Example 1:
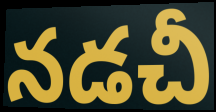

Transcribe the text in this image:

నడచీ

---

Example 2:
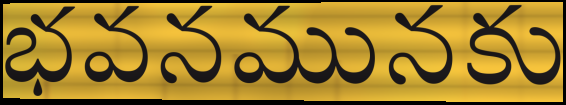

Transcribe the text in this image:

భవనమునకు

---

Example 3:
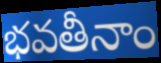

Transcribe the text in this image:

భవతీనాం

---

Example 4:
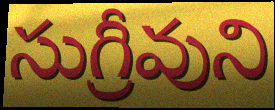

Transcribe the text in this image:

సుగ్రీవుని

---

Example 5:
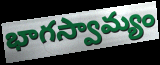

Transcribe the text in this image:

భాగస్వామ్యం